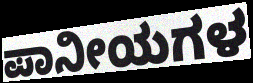
ಪಾನೀಯಗಳ